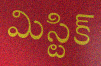
మిస్టిక్